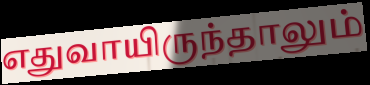
எதுவாயிருந்தாலும்